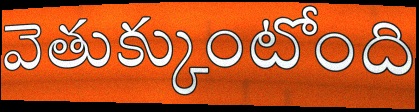
వెతుక్కుంటోంది